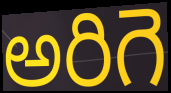
అరిగె